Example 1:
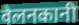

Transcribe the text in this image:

वेलनकानी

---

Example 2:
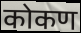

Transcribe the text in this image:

कोकण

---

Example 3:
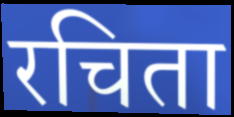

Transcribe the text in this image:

रचिता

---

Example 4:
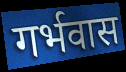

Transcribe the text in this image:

गर्भवास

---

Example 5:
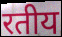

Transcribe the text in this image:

रतीय